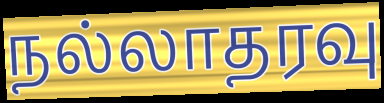
நல்லாதரவு